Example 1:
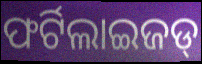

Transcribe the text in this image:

ଫର୍ଟିଲାଇଜଡ୍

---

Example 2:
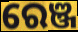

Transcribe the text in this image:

ରେଞ୍ଜ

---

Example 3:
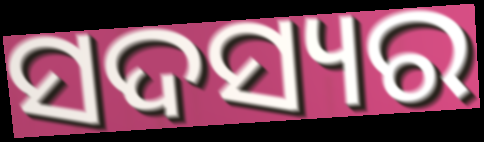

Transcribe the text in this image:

ସଦସ୍ୟର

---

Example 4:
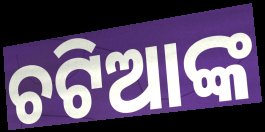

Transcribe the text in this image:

ଚଟିଆଙ୍କ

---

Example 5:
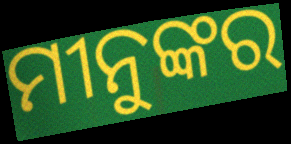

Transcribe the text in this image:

ମୀନୁଙ୍କର